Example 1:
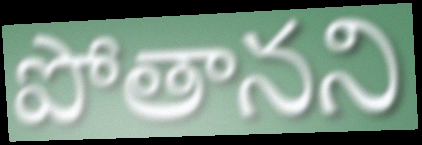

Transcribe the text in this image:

పోతానని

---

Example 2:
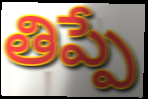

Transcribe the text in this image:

తిప్పే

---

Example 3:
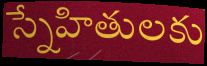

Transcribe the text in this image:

స్నేహితులకు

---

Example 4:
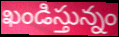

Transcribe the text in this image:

ఖండిస్తున్నం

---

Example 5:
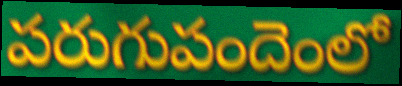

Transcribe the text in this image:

పరుగుపందెంలో